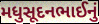
મધુસૂદનભાઈનું